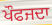
ਖੌਫਜਦਾ